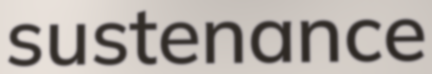
sustenance